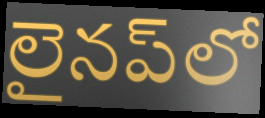
లైనప్‌లో